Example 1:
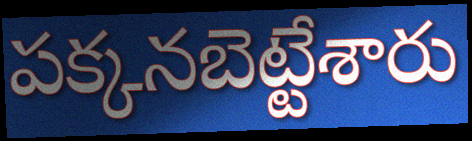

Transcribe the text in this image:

పక్కనబెట్టేశారు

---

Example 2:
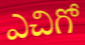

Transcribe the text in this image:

ఎచిగో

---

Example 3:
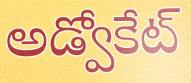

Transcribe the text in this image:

అడ్వోకేట్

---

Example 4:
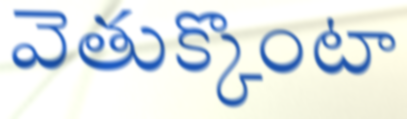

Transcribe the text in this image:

వెతుక్కొంటా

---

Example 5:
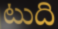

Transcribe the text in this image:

టుది